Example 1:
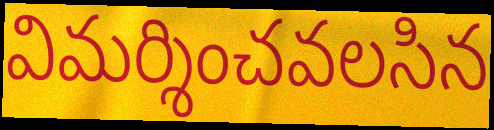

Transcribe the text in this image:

విమర్శించవలసిన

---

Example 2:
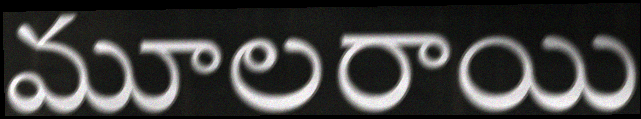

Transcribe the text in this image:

మూలరాయి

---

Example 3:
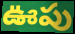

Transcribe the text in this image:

ఊపు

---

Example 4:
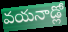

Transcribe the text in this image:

వయనాడ్లో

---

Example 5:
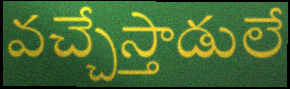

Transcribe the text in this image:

వచ్చేస్తాడులే